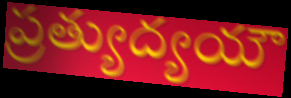
ప్రత్యుద్యయౌ